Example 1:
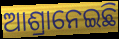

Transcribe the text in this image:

ଆଶ୍ରାନେଇଛି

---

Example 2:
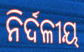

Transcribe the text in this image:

ନିର୍ଦଳୀୟ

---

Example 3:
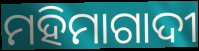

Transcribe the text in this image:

ମହିମାଗାଦୀ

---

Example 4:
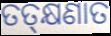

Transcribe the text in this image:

ତତ୍କ୍ଷଣାତ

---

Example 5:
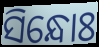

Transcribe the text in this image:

ସିନ୍ଧୋଃ